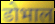
डोभाल